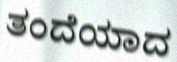
ತಂದೆಯಾದ